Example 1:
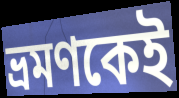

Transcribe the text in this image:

ভ্রমণকেই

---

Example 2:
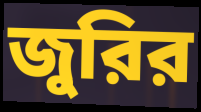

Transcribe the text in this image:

জুরির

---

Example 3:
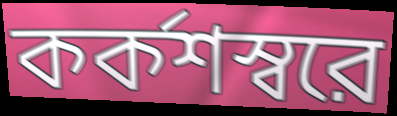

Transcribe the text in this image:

কর্কশস্বরে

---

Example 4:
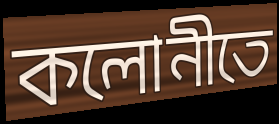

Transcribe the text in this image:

কলোনীতে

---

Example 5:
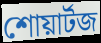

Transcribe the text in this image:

শোয়ার্টজ